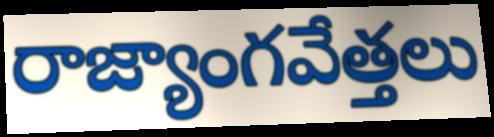
రాజ్యాంగవేత్తలు